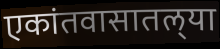
एकांतवासातल्या